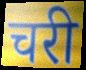
चरी